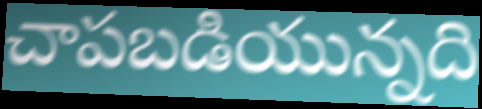
చాపబడియున్నది